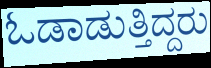
ಓಡಾಡುತ್ತಿದ್ದರು